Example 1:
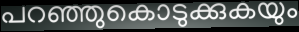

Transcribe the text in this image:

പറഞ്ഞുകൊടുക്കുകയും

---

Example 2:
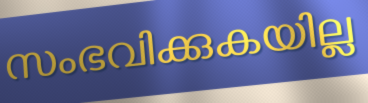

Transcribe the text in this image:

സംഭവിക്കുകയില്ല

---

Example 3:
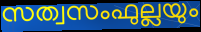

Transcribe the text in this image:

സത്വസംഫുല്ലയും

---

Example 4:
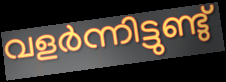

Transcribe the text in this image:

വളർന്നിട്ടുണ്ടു്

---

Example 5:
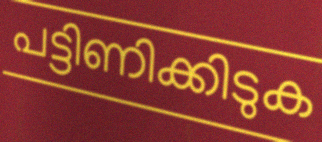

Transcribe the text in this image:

പട്ടിണിക്കിടുക